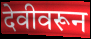
देवीवरून